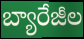
బ్యారేజీల